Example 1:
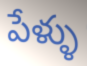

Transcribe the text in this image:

పేళ్ళు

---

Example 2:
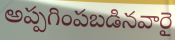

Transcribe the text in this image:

అప్పగింపబడినవారై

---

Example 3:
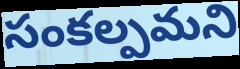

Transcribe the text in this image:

సంకల్పమని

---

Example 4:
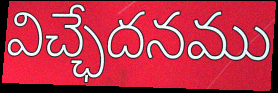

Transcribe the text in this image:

విచ్ఛేదనము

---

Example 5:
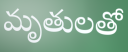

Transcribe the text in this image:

మృతులతో